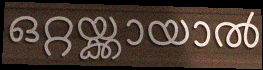
ഒറ്റയ്ക്കായാൽ